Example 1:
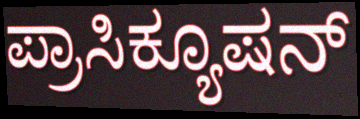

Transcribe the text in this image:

ಪ್ರಾಸಿಕ್ಯೂಷನ್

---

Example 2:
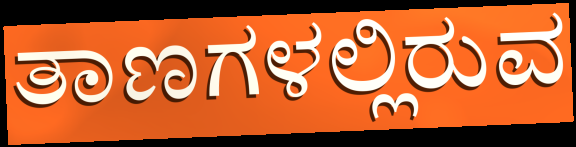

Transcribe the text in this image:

ತಾಣಗಳಲ್ಲಿರುವ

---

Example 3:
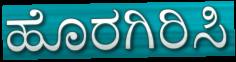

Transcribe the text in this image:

ಹೊರಗಿರಿಸಿ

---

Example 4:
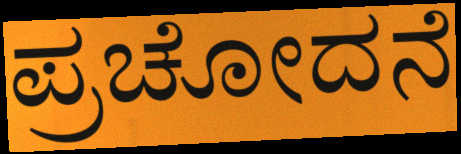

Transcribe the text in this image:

ಪ್ರಚೋದನೆ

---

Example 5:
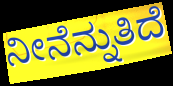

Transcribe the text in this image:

ನೀನೆನ್ನುತಿದೆ